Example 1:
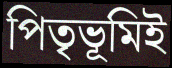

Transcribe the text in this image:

পিতৃভূমিই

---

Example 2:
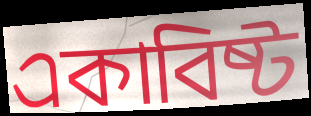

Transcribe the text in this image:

একাবিষ্ট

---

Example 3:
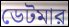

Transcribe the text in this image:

ডেটমার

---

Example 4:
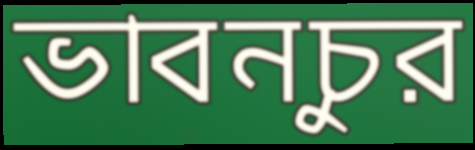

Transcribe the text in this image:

ভাবনচুর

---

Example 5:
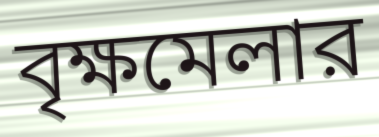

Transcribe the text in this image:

বৃক্ষমেলার